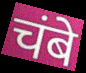
चंबे